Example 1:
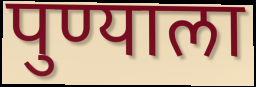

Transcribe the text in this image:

पुण्याला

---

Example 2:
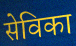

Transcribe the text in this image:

सेविका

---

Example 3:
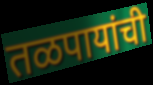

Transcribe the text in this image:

तळपायांची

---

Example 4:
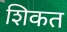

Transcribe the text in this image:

शिकत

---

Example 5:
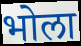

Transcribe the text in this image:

भोला